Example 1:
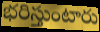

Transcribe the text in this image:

భరిస్తుంటారు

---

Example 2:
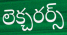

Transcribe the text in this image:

లెక్చరర్స్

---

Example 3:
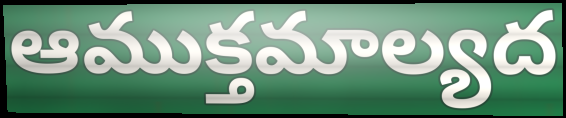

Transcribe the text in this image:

ఆముక్తమాల్యద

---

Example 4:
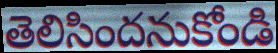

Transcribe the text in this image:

తెలిసిందనుకోండి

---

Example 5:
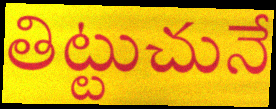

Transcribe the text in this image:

తిట్టుచునే